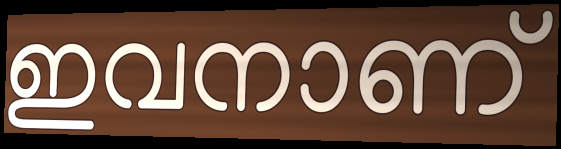
ഇവനാണ്